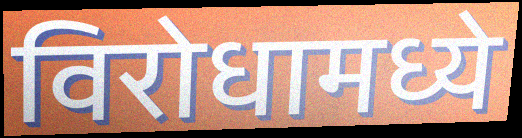
विरोधामध्ये